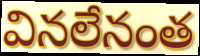
వినలేనంత